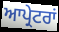
ਆਪ੍ਰੇਟਰਾਂ